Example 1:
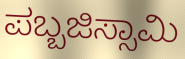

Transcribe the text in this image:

ಪಬ್ಬಜಿಸ್ಸಾಮಿ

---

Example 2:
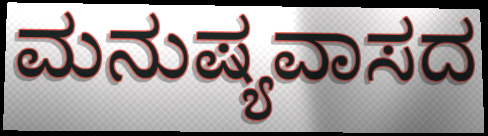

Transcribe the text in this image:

ಮನುಷ್ಯವಾಸದ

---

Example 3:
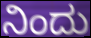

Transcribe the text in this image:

ನಿಂದು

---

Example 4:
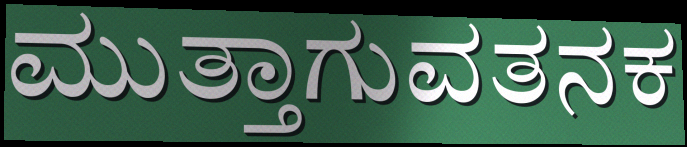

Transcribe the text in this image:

ಮುತ್ತಾಗುವತನಕ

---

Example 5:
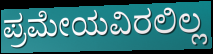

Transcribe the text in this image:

ಪ್ರಮೇಯವಿರಲಿಲ್ಲ